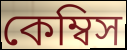
কেম্বিস